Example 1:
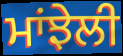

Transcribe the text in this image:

ਮਾਂਝੇਲੀ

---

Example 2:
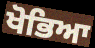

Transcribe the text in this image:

ਖੋਭਿਆ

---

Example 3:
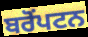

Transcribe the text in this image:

ਬਰੋਂਪਟਨ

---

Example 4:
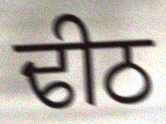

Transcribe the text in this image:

ਢੀਠ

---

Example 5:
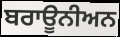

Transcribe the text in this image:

ਬਰਾਊਨੀਅਨ